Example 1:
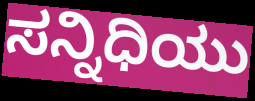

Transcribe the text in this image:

ಸನ್ನಿಧಿಯು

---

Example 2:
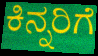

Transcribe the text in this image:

ಕಿನ್ನರಿಗೆ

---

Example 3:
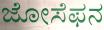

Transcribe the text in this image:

ಜೋಸೆಫನ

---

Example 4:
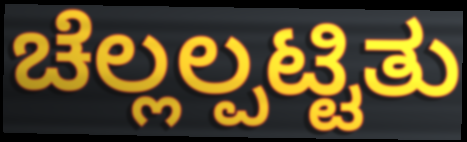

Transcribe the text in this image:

ಚೆಲ್ಲಲ್ಪಟ್ಟಿತು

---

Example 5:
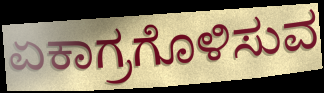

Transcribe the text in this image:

ಏಕಾಗ್ರಗೊಳಿಸುವ